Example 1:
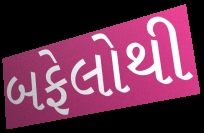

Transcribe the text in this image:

બફેલોથી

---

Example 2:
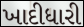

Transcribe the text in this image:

ખાદીધારી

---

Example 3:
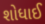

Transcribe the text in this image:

શોધાઈ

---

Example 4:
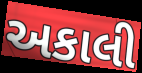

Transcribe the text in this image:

અકાલી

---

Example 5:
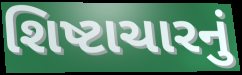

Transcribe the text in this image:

શિષ્ટાચારનું